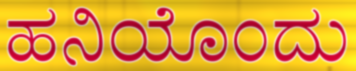
ಹನಿಯೊಂದು